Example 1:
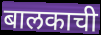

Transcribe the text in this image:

बालकाची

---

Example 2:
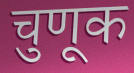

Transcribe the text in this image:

चुणूक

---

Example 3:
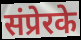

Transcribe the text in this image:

संप्रेरके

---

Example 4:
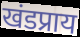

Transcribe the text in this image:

खंडप्राय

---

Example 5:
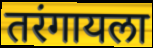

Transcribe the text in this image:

तरंगायला